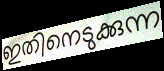
ഇതിനെടുക്കുന്ന